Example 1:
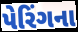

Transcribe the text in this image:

પેરિંગના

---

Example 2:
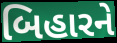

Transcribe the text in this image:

બિહારને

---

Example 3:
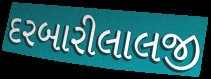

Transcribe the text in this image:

દરબારીલાલજી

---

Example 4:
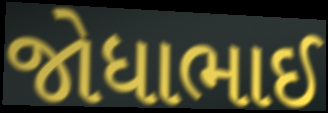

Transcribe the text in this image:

જોધાભાઈ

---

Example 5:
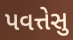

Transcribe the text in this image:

પવત્તેસુ